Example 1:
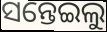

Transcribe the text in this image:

ସନ୍ତେଇଲୁ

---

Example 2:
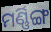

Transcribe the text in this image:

ମର୍ଣ୍ଣିଙ୍ଗ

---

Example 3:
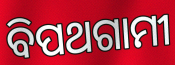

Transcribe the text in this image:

ବିପଥଗାମୀ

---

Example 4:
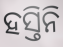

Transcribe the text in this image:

ହସ୍ତିନି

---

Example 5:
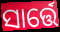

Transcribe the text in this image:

ସାର୍ତ୍ତେ